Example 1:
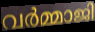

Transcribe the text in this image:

വർമ്മാജി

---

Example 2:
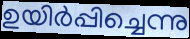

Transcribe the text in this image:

ഉയിർപ്പിച്ചെന്നു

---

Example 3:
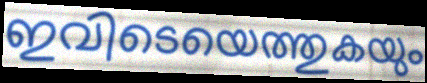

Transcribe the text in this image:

ഇവിടെയെത്തുകയും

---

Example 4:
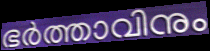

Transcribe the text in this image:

ഭർത്താവിനും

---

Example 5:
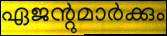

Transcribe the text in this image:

ഏജന്റുമാർക്കും